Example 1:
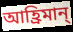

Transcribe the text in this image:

আহ্রিমান্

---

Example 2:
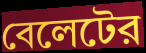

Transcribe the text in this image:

বেলেটের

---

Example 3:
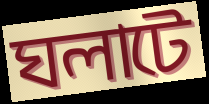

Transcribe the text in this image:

ঘলাটে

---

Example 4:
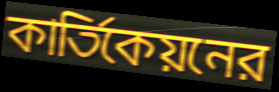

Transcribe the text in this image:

কার্তিকেয়নের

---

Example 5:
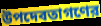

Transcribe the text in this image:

উপদেবতাগণের